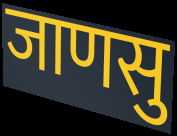
जाणसु